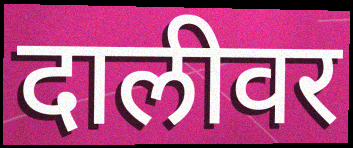
दालीवर